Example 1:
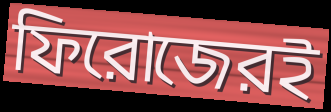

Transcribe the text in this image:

ফিরোজেরই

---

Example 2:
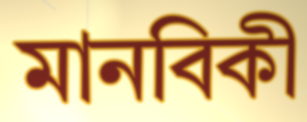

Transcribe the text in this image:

মানবিকী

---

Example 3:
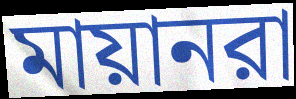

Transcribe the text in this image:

মায়ানরা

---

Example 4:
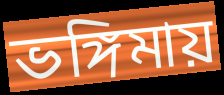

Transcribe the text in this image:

ভঙ্গিমায়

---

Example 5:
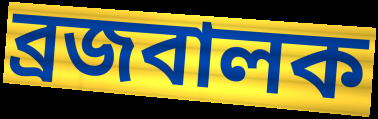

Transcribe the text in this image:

ব্রজবালক